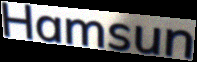
Hamsun